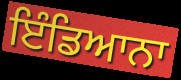
ਇੰਡਿਆਨਾ